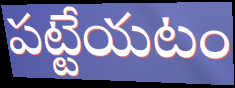
పట్టేయటం